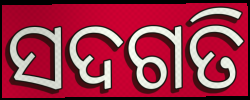
ସଦଗତି